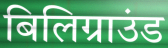
बिलिग्राउंड